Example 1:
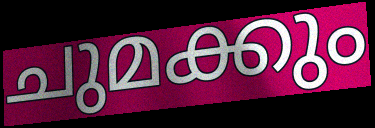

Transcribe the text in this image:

ചുമക്കും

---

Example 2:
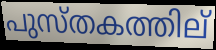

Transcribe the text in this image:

പുസ്തകത്തില്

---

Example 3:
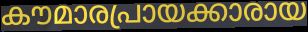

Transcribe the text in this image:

കൗമാരപ്രായക്കാരായ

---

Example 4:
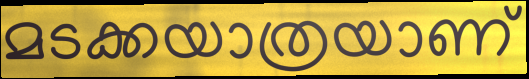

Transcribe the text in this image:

മടക്കയാത്രയാണ്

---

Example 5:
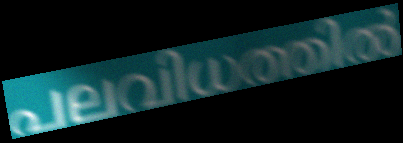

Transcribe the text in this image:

പലവിധത്തിൽ